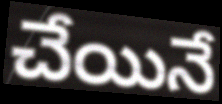
చేయినే